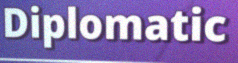
Diplomatic